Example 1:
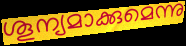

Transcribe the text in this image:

ശൂന്യമാക്കുമെന്നു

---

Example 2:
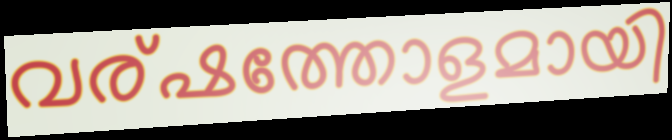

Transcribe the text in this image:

വര്ഷത്തോളമായി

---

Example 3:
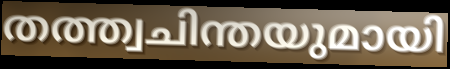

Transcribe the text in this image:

തത്ത്വചിന്തയുമായി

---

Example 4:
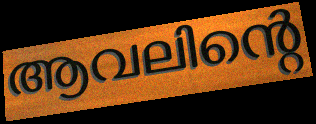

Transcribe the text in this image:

ആവലിന്റെ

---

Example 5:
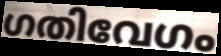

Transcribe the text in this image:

ഗതിവേഗം